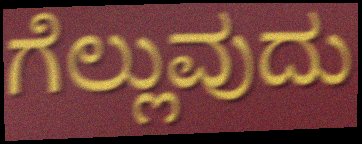
ಗೆಲ್ಲುವುದು